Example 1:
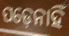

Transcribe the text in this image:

ପଡ଼େନାହିଁ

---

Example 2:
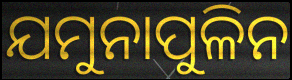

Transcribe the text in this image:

ଯମୁନାପୁଳିନ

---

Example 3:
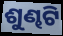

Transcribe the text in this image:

ଶୁଣ୍ଢଟି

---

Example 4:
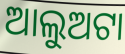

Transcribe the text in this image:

ଆଲୁଅଟା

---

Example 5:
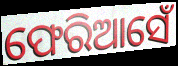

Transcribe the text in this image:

ଫେରିଆସେଁ